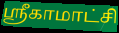
ஸ்ரீகாமாட்சி